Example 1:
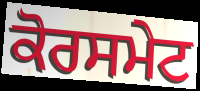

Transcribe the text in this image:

ਕੋਰਸਮੇਟ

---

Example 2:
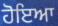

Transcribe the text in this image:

ਹੋਇਆ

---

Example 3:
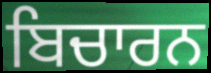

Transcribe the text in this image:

ਬਿਚਾਰਨ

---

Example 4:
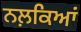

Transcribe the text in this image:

ਨਲ਼ਕਿਆਂ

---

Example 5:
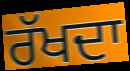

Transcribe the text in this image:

ਰੱਖਦਾ